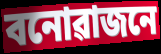
বনোৱাজনে